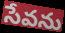
సేవను